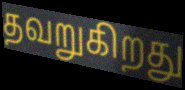
தவறுகிறது